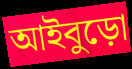
আইবুড়ো